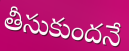
తీసుకుందనే